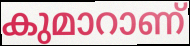
കുമാറാണ്